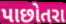
પાછોતરા